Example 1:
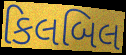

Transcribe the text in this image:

કિલબિલ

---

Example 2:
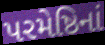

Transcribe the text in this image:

પરમેષ્ઠિનાં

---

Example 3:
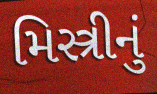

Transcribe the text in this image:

મિસ્ત્રીનું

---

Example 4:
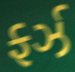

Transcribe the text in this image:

ફર્ઝ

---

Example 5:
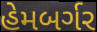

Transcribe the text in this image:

હેમબર્ગર